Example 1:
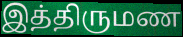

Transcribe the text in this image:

இத்திருமண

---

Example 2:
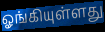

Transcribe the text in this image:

ஓங்கியுள்ளது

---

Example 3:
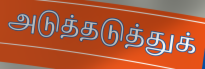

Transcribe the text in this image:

அடுத்தடுத்துக்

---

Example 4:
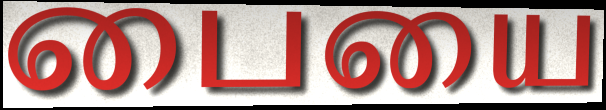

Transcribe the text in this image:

பையை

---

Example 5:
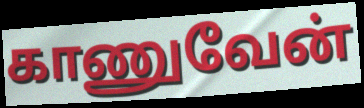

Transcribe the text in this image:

காணுவேன்